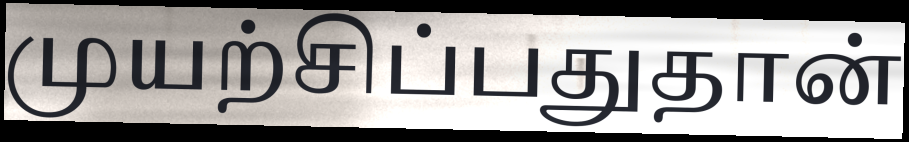
முயற்சிப்பதுதான்